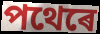
পথেৰে